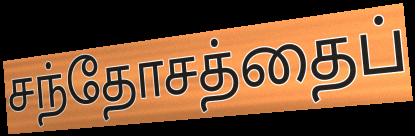
சந்தோசத்தைப்